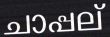
ചാപ്പല്